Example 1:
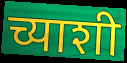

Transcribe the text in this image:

च्याशी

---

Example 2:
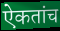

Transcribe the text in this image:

ऐकतांच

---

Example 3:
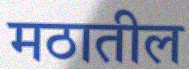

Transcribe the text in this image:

मठातील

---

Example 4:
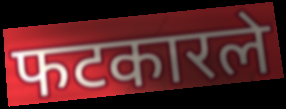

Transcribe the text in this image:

फटकारले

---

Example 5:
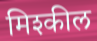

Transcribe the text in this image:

मिश्कील